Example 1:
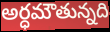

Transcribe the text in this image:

అర్ధమౌతున్నది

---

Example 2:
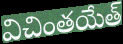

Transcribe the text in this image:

విచింతయేత్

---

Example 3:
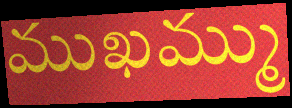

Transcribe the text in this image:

ముఖమ్ము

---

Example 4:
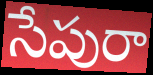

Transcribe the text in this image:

సేపురా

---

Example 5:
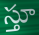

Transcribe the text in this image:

స్తూ